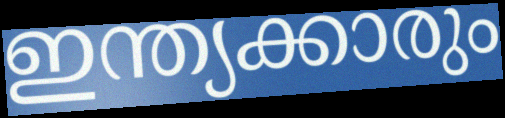
ഇന്ത്യക്കാരും